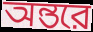
অন্তরে